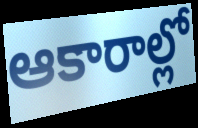
ఆకారాల్లో